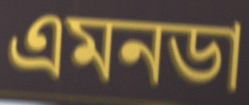
এমনডা